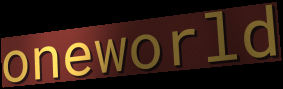
oneworld